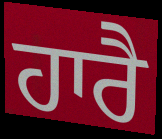
ਹਾਰੈ